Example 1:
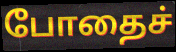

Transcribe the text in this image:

போதைச்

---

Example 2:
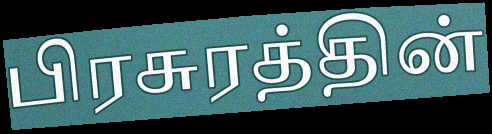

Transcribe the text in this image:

பிரசுரத்தின்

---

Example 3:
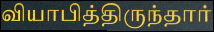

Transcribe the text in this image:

வியாபித்திருந்தார்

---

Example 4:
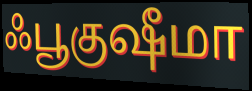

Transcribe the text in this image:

ஃபூகுஷீமா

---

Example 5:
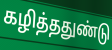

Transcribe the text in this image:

கழித்ததுண்டு